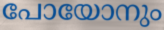
പോയോനും